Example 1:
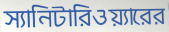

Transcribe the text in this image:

স্যানিটারিওয়্যারের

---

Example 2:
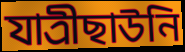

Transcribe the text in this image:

যাত্রীছাউনি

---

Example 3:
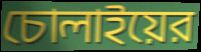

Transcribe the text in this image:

চোলাইয়ের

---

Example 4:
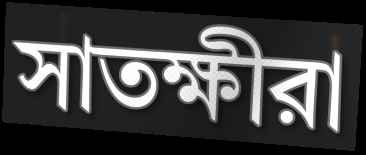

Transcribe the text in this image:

সাতক্ষীরা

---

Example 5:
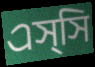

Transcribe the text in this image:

এস্‌সি